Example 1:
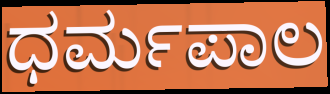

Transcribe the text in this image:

ಧರ್ಮಪಾಲ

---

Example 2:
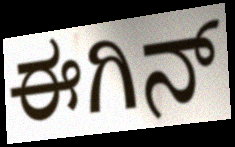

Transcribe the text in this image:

ಈಗಿನ್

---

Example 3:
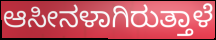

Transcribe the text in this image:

ಆಸೀನಳಾಗಿರುತ್ತಾಳೆ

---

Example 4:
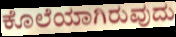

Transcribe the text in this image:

ಕೊಲೆಯಾಗಿರುವುದು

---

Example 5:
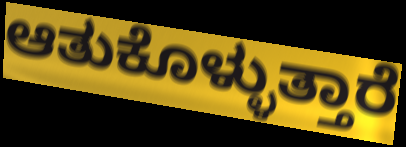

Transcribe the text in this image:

ಆತುಕೊಳ್ಳುತ್ತಾರೆ